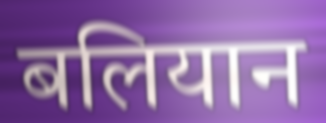
बलियान